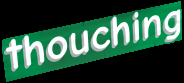
thouching